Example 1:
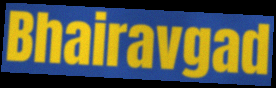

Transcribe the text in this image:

Bhairavgad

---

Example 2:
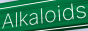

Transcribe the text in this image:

Alkaloids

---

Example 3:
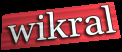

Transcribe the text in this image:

wikral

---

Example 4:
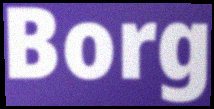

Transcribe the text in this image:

Borg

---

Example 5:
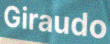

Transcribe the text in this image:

Giraudo